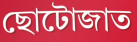
ছোটোজাত